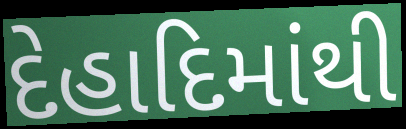
દેહાદિમાંથી